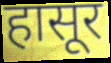
हासूर